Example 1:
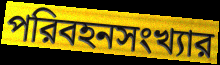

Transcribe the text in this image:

পরিবহনসংখ্যার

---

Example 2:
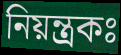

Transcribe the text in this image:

নিয়ন্ত্রকঃ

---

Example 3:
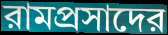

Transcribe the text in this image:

রামপ্রসাদের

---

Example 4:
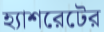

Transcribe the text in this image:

হ্যাশরেটের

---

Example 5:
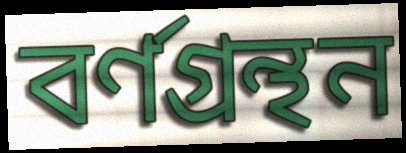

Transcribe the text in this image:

বর্ণগ্রন্থন